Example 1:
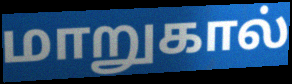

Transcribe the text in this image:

மாறுகால்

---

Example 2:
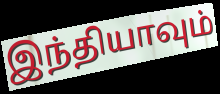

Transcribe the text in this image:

இந்தியாவும்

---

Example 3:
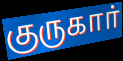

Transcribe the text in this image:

குருகார்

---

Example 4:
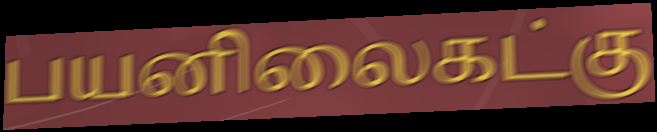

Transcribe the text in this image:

பயனிலைகட்கு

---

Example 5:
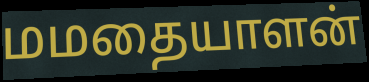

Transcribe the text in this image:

மமதையாளன்